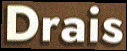
Drais